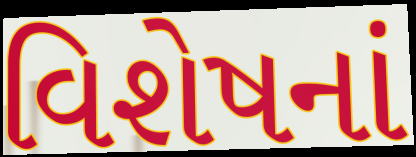
વિશેષનાં